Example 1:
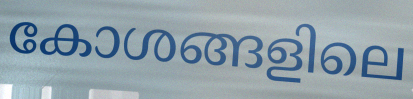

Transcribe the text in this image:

കോശങ്ങളിലെ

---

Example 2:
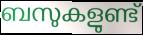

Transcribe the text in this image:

ബസുകളുണ്ട്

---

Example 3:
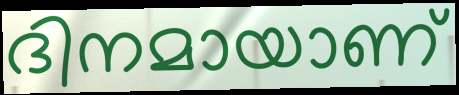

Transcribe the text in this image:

ദിനമായാണ്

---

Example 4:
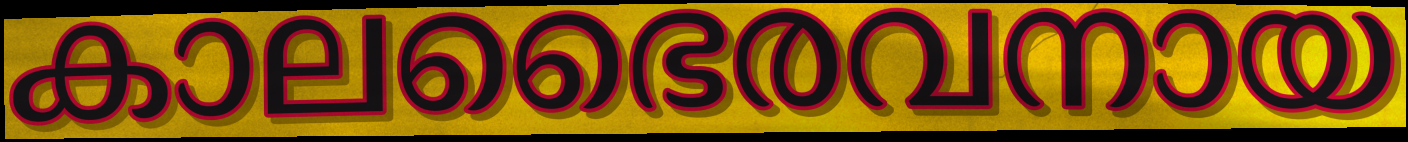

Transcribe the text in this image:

കാലഭൈരവനായ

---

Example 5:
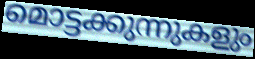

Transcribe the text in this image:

മൊട്ടക്കുന്നുകളും